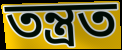
তন্ত্ৰত